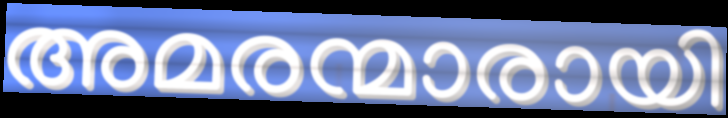
അമരന്മാരായി